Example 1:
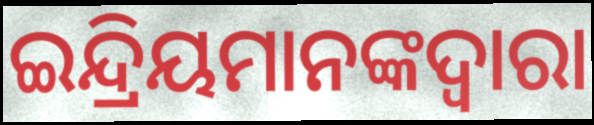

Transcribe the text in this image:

ଇନ୍ଦ୍ରିୟମାନଙ୍କଦ୍ୱାରା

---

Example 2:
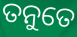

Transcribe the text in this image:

ତନୁତେ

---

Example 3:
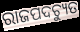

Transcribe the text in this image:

ରାଜପଦଚ୍ୟୁତ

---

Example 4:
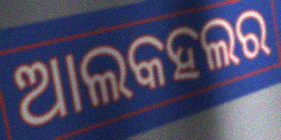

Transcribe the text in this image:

ଆଲକହଲର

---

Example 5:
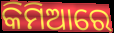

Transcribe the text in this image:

କିମିଆରେ